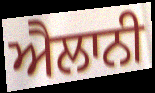
ਐਲਾਨੀ